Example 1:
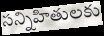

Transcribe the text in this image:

సన్నిహితులకు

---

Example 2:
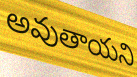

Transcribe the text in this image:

అవుతాయని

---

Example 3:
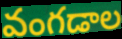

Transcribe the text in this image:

వంగడాల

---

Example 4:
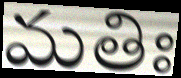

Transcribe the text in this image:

మతిః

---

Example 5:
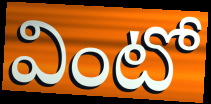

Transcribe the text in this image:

వింటో